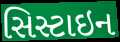
સિસ્ટાઇન